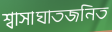
শ্বাসাঘাতজনিত